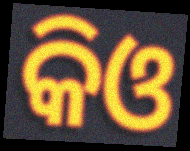
କିଓ